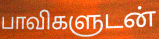
பாவிகளுடன்